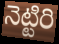
నెట్టిరి